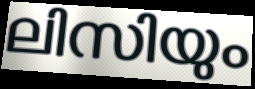
ലിസിയും